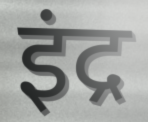
इंद्र